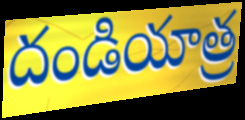
దండియాత్ర